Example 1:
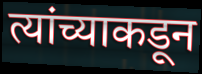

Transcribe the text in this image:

त्यांच्याकडून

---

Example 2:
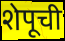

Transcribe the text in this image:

शेपूची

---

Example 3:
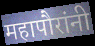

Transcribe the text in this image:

महापौरांनी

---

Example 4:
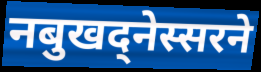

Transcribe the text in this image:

नबुखद्नेस्सरने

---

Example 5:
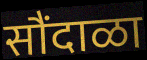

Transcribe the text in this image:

सौंदाळा